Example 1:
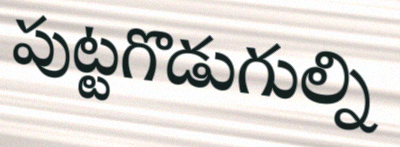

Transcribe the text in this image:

పుట్టగొడుగుల్ని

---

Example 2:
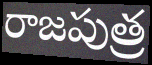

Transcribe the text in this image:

రాజపుత్ర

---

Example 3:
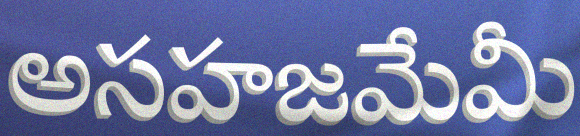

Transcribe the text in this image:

అసహజమేమీ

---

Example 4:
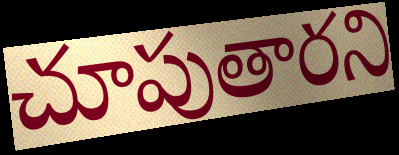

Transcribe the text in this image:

చూపుతారని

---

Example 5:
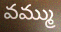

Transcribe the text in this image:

వమ్ము